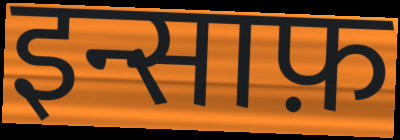
इन्साफ़